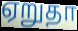
ஏறுதா